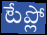
టేప్లో